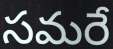
సమరే